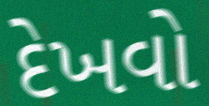
દેખવો